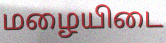
மழையிடை